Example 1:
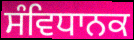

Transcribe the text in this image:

ਸੰਵਿਧਾਨਕ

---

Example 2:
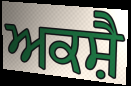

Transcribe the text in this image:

ਅਕਸ਼ੈ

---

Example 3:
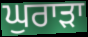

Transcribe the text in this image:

ਘੁਰਾੜਾ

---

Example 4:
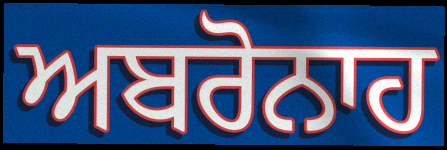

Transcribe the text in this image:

ਅਬਰੋਨਾਹ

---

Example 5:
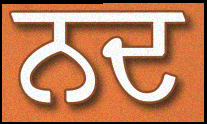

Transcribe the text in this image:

ਨਦ